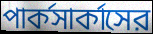
পার্কসার্কাসের